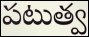
పటుత్వ